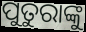
ପୁତୁରାଙ୍କୁ